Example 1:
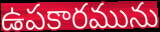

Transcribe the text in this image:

ఉపకారమును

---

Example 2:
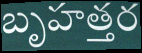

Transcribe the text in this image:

బృహత్తర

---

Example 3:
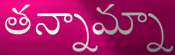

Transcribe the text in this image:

తన్నామ్నా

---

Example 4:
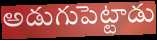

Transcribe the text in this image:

అడుగుపెట్టాడు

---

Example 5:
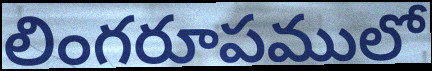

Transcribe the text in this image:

లింగరూపములో